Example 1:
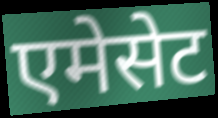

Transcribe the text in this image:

एमेसेट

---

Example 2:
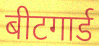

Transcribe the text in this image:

बीटगार्ड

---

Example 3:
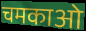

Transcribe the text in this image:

चमकाओ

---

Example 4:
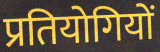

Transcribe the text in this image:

प्रतियोगियों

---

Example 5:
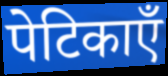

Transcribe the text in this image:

पेटिकाएँ